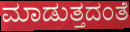
ಮಾಡುತ್ತದಂತೆ